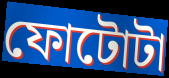
ফোটোটা